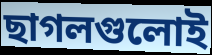
ছাগলগুলোই